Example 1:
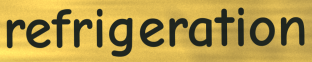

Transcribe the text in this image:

refrigeration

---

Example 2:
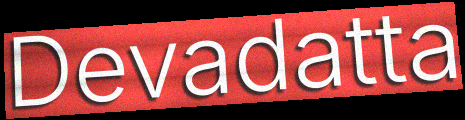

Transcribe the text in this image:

Devadatta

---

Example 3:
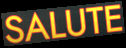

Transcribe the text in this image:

SALUTE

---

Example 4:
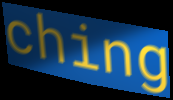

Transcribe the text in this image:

ching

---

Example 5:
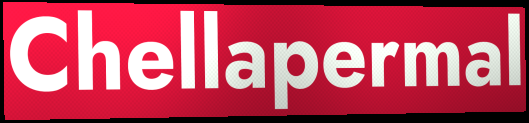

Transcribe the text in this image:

Chellapermal